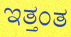
ಇತ್ತಂತ